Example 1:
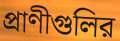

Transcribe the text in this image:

প্রাণীগুলির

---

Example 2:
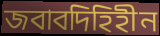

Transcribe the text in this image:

জবাবদিহিহীন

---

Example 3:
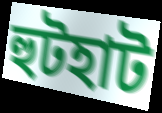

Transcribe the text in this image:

হুটহাট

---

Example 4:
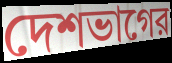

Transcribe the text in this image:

দেশভাগের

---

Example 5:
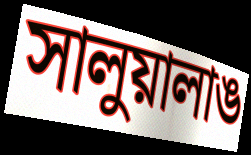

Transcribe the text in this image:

সালুয়ালাঙ